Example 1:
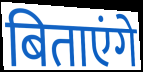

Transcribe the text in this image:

बिताएंगे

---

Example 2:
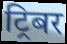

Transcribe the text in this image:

ट्रिबर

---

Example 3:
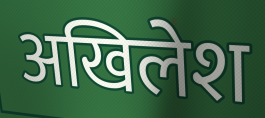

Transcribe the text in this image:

अखिलेश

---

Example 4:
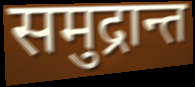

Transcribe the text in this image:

समुद्रान्त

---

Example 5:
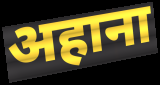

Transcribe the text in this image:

अहाना